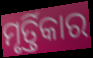
ମୃର୍ତ୍ତିକାର